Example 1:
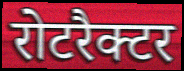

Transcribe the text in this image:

रोटरैक्टर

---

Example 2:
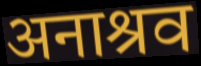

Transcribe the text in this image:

अनाश्रव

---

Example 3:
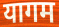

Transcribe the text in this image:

यागम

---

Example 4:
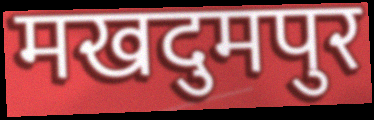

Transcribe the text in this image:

मखदुमपुर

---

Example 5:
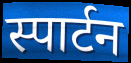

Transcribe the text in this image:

स्पार्टन